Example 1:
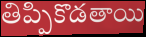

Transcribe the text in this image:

తిప్పికొడతాయి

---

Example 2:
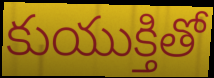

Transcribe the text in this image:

కుయుక్తితో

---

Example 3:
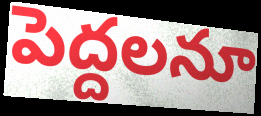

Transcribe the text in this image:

పెద్దలనూ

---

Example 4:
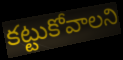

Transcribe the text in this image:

కట్టుకోవాలని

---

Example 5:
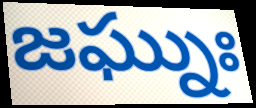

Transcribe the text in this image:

జఘ్నుః